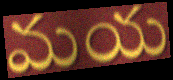
మయ